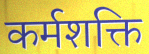
कर्मशक्ति